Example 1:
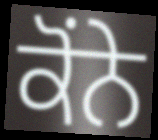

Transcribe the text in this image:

ਕੋਂਨੇ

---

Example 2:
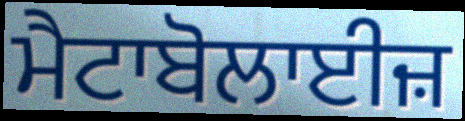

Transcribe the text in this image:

ਮੈਟਾਬੋਲਾਈਜ਼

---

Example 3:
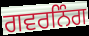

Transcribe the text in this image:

ਗਵਰਨਿੰਗ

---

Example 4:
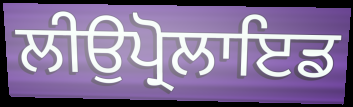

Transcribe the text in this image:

ਲੀਉਪ੍ਰੋਲਾਇਡ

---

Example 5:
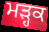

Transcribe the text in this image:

ਮੜ੍ਹਕ